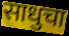
साधुचा